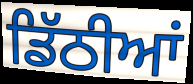
ਡਿੱਠੀਆਂ